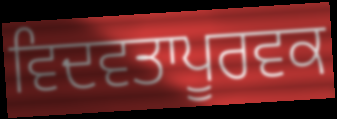
ਵਿਦਵਤਾਪੂਰਵਕ